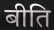
बीति